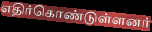
எதிர்கொண்டுள்ளனர்